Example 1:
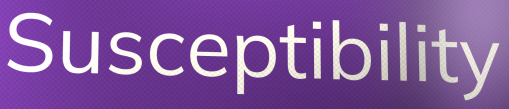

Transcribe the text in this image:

Susceptibility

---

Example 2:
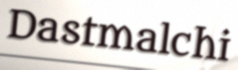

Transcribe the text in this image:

Dastmalchi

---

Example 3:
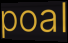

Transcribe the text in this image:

poal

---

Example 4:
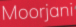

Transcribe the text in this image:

Moorjani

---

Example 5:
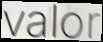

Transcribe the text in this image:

valor